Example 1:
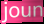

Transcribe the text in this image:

joun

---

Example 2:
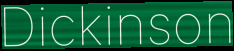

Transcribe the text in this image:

Dickinson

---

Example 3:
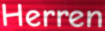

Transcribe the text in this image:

Herren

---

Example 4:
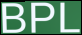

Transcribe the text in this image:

BPL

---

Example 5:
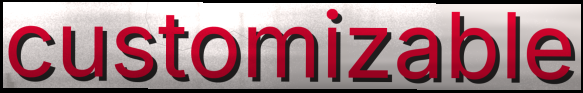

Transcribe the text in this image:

customizable